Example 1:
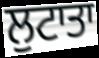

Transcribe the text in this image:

ਲੁਟਾਤਾ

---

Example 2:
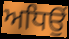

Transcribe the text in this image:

ਅਧਿਉਂ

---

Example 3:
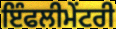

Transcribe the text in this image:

ਇੰਫਲੀਮੇਂਟਰੀ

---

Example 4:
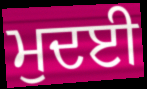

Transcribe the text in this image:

ਮੁਦਈ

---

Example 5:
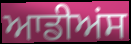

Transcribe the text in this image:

ਆਡੀਅਂਸ